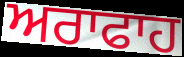
ਅਰਾਫਾਹ